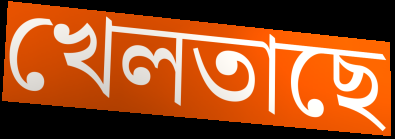
খেলতাছে